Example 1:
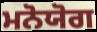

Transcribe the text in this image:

ਮਨੋਯੋਗ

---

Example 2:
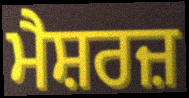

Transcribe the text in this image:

ਮੈਸ਼ਰਜ਼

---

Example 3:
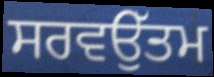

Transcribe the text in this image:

ਸਰਵਉੱਤਮ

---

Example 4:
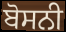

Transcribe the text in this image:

ਬੋਸਨੀ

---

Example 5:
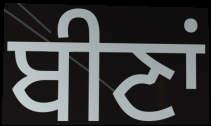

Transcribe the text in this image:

ਬੀਣਾਂ